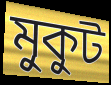
মুকুট